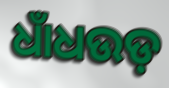
ଧାଁଧଉଡ଼